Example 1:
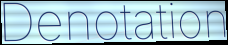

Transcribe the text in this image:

Denotation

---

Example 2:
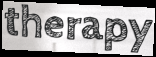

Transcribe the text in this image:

therapy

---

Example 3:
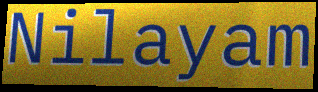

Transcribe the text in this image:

Nilayam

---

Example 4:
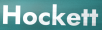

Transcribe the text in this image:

Hockett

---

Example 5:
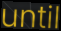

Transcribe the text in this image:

until